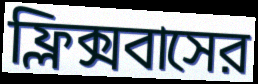
ফ্লিক্সবাসের